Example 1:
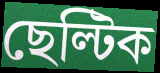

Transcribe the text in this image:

ছেল্টিক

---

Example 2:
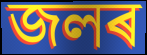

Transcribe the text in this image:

জলৰ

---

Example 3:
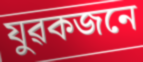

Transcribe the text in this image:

যুৱকজনে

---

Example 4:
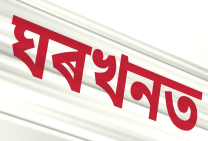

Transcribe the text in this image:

ঘৰখনত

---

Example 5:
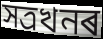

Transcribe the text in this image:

সত্ৰখনৰ